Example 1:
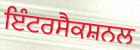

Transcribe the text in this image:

ਇੰਟਰਸੈਕਸ਼ਨਲ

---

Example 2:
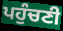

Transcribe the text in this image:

ਪਹੁੰਚਣੀ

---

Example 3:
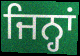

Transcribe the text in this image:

ਜਿਨ੍ਹਾਂ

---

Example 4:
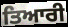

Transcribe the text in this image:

ਤਿਆਰੀ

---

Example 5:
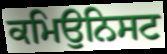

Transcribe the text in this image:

ਕਮਿਉਨਿਸਟ